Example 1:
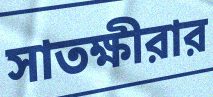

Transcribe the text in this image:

সাতক্ষীরার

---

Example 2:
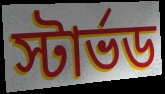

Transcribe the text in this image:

স্টার্ভড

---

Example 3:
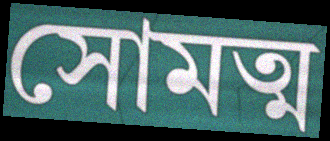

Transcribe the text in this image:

সোমত্ম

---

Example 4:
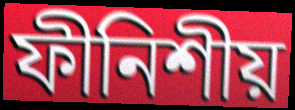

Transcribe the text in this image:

ফীনিশীয়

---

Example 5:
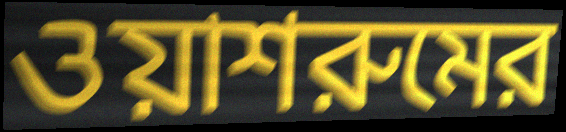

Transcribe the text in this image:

ওয়াশরুমের